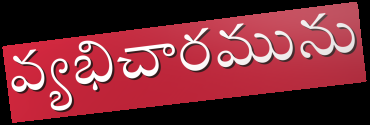
వ్యభిచారమును